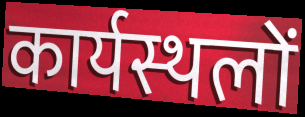
कार्यस्थलों